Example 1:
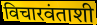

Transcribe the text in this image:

विचारवंताशी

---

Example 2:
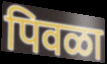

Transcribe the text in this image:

पिवळा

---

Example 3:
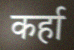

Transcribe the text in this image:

कर्हा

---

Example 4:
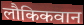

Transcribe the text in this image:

लौकिकवान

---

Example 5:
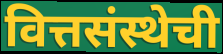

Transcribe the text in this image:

वित्तसंस्थेची